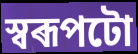
স্বৰূপটো